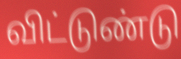
விட்டுண்டு